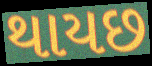
થાયછ